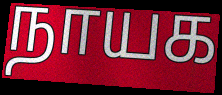
நாயக